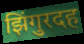
झिंगुरदह